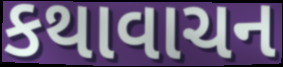
કથાવાચન